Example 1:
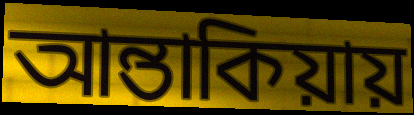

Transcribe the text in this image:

আন্তাকিয়ায়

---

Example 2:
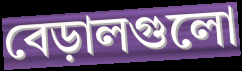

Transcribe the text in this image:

বেড়ালগুলো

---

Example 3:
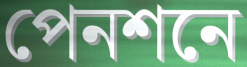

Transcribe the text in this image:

পেনশনে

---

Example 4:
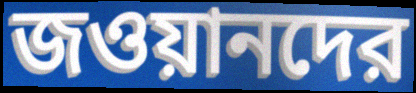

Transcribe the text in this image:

জওয়ানদের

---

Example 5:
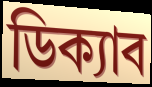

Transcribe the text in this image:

ডিক্যাব